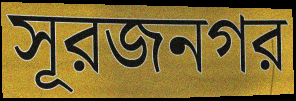
সূরজনগর